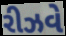
રીઝવે